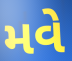
મવે